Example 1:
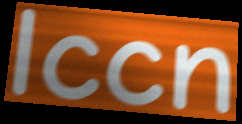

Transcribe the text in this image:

lccn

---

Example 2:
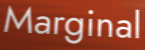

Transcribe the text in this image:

Marginal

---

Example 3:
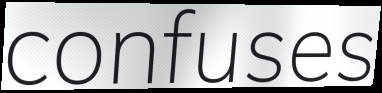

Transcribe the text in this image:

confuses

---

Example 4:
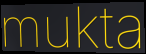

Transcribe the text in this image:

mukta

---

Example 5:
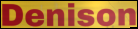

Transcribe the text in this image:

Denison